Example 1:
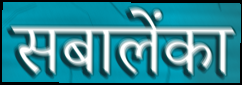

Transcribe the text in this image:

सबालेंका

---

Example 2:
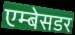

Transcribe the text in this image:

एम्बेसडर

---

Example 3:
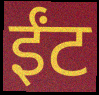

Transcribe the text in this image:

ईंट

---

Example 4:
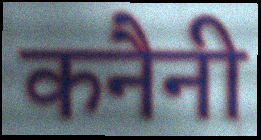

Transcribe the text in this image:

कनैनी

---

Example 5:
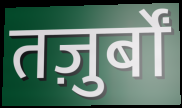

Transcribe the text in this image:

तज़ुर्बों